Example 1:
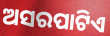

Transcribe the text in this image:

ଅସରପାଟିଏ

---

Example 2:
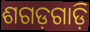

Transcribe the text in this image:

ଶଗଡ଼ଗାଡ଼ି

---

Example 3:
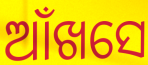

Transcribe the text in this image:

ଆଁଖସେ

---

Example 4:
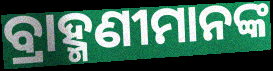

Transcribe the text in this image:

ବ୍ରାହ୍ମଣୀମାନଙ୍କ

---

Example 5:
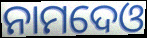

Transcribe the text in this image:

ନାମଦେଓ